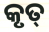
କୃତ୍